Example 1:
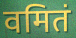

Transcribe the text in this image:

वमितं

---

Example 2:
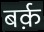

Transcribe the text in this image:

बर्क़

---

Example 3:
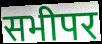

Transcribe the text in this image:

सभीपर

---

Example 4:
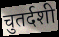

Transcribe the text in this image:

चुतर्दशी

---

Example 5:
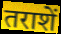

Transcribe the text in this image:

तराशें